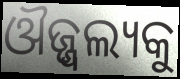
ଔଜ୍ଜ୍ଵଲ୍ୟକୁ